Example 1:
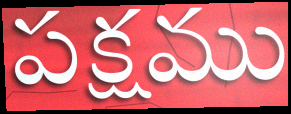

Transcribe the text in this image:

పక్షము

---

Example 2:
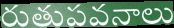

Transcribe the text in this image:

రుతుపవనాలు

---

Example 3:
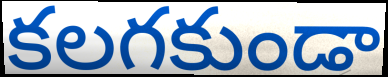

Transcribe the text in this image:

కలగకుండా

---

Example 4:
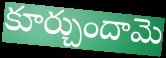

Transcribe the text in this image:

కూర్చుందామె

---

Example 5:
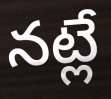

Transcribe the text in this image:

నట్లే